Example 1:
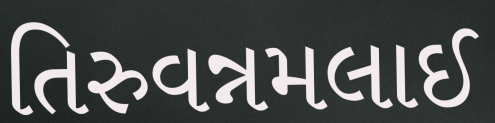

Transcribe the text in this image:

તિરુવન્નમલાઈ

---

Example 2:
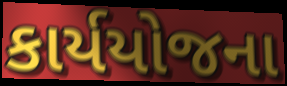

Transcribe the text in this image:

કાર્યયોજના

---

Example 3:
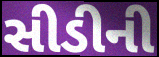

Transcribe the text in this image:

સીડીની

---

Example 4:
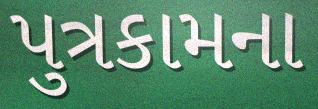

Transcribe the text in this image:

પુત્રકામના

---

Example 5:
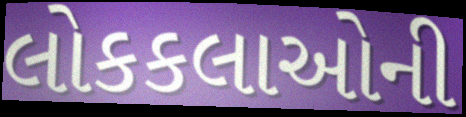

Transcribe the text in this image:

લોકકલાઓની